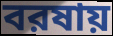
বরষায়